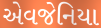
એવજેનિયા